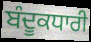
ਬੰਦੂਕਧਾਰੀ